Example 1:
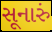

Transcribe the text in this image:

સૂનારું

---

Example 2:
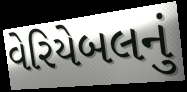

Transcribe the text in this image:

વેરિયેબલનું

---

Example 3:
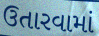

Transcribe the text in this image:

ઉતારવામાં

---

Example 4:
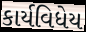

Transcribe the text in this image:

કાર્યવિધેય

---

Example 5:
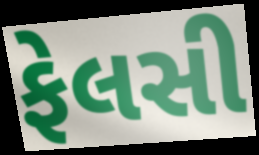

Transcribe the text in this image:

ફેલસી